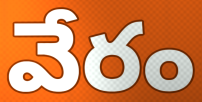
వేరం